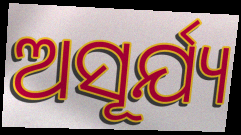
ଅସୂର୍ଯ୍ୟ